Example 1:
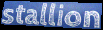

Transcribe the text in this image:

stallion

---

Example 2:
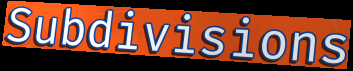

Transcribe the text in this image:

Subdivisions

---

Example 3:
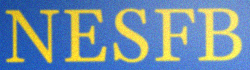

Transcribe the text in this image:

NESFB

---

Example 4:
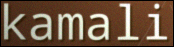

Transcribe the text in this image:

kamali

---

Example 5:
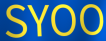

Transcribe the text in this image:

SYOO